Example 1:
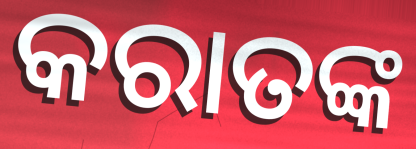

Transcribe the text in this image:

କରାତଙ୍କ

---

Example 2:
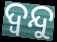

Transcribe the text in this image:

ଦ୍ଵନ୍ଦୁ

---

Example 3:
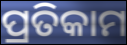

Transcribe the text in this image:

ପ୍ରତିକାମ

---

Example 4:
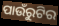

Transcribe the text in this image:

ପାଉଁରୁଟିର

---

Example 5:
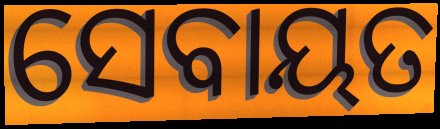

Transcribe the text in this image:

ସେବାୟତ